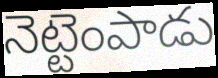
నెట్టెంపాడు